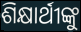
ଶିକ୍ଷାର୍ଥୀଙ୍କୁ